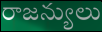
రాజన్యులు